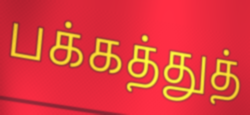
பக்கத்துத்